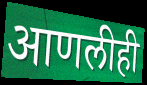
आणलीही